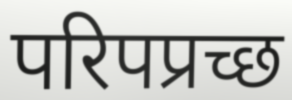
परिपप्रच्छ